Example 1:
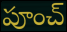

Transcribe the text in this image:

పూంచ్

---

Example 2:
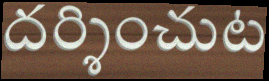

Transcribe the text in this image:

దర్శించుట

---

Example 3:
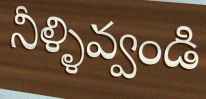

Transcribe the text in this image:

నీళ్ళివ్వండి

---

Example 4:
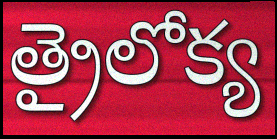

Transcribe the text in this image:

త్రైలోక్య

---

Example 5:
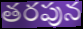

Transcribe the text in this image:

తరపున